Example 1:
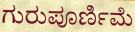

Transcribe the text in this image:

ಗುರುಪೂರ್ಣಿಮೆ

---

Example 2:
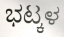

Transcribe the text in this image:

ಭಟ್ಕಳ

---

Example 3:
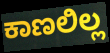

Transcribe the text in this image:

ಕಾಣಲಿಲ್ಲ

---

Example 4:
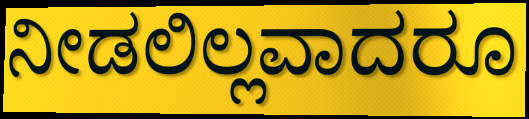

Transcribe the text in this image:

ನೀಡಲಿಲ್ಲವಾದರೂ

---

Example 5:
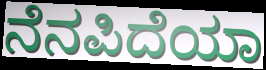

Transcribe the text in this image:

ನೆನಪಿದೆಯಾ